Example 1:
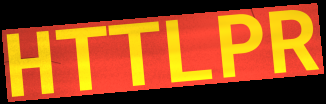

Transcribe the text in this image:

HTTLPR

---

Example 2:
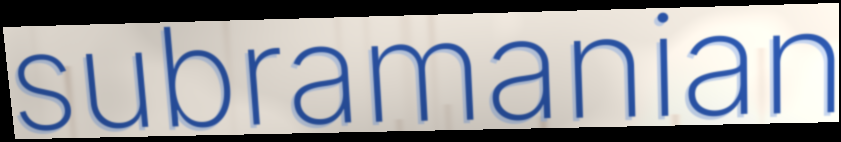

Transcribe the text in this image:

subramanian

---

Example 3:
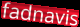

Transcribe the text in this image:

fadnavis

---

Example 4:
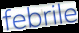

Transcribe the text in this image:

febrile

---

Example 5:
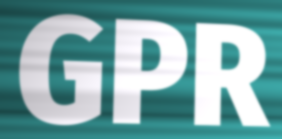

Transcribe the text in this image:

GPR